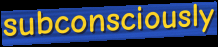
subconsciously